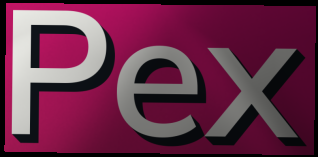
Pex